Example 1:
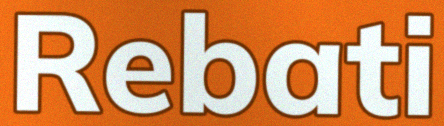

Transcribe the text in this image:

Rebati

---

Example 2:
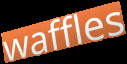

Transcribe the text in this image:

waffles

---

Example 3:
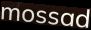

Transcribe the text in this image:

mossad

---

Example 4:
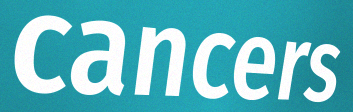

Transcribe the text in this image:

cancers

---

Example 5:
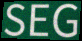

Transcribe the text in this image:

SEG